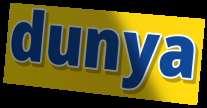
dunya